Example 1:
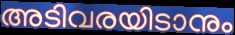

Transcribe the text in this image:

അടിവരയിടാനും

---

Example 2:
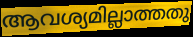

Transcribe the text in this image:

ആവശ്യമില്ലാത്തതു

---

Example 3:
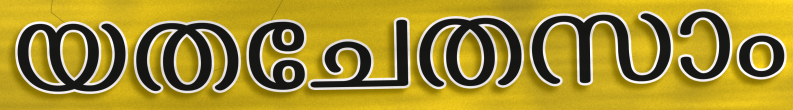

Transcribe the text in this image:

യതചേതസാം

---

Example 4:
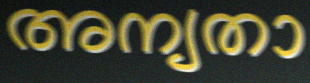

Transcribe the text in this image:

അന്യതാ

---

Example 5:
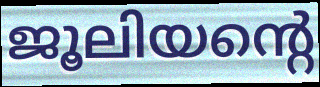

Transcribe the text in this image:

ജൂലിയന്റെ